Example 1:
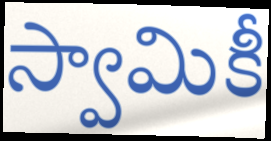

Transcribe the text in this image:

స్వామికీ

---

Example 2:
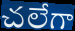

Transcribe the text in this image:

చలేగా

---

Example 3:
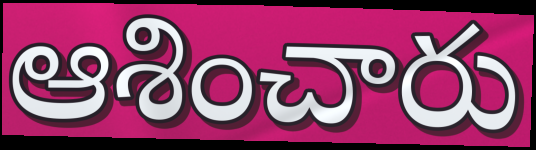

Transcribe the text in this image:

ఆశించారు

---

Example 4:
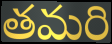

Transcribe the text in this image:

తమరి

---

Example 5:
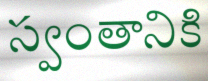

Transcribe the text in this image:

స్వంతానికి